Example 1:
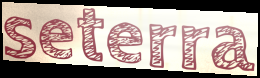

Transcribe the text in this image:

seterra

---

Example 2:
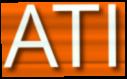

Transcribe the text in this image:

ATI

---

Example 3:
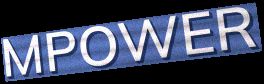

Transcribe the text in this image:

MPOWER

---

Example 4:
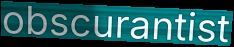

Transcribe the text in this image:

obscurantist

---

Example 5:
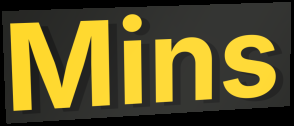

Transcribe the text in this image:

Mins